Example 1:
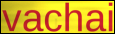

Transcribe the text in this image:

vachai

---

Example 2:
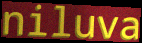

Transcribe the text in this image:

niluva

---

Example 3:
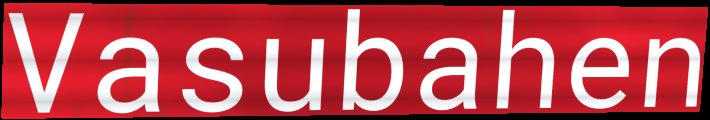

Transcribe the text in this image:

Vasubahen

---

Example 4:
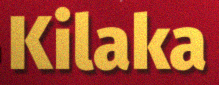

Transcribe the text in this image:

Kilaka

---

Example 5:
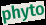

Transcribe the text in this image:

phyto